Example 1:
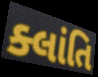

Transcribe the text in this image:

ક્લાંતિ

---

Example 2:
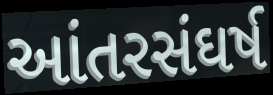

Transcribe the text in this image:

આંતરસંઘર્ષ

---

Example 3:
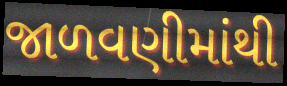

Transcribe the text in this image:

જાળવણીમાંથી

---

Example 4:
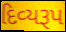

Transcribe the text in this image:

દિવ્‍યરૂપ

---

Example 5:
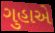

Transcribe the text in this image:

ગુહાએ